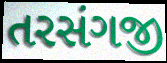
તરસંગજી